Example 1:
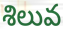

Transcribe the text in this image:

శిలువ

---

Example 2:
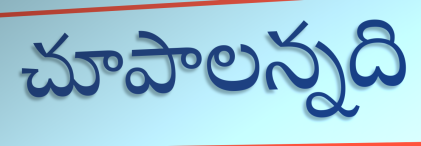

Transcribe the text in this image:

చూపాలన్నది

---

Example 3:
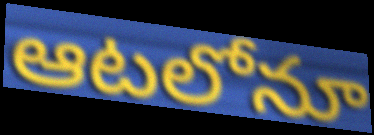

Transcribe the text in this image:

ఆటలోనూ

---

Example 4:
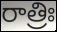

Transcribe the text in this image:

రాత్రిః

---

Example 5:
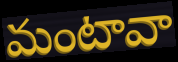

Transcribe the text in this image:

మంటావా